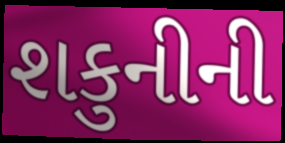
શકુનીની